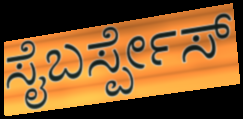
ಸೈಬರ್ಸ್ಪೇಸ್